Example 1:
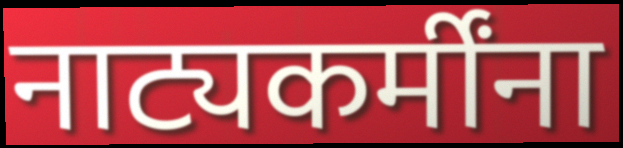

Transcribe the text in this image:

नाट्यकर्मींना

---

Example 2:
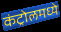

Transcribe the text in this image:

कंट्रोलमध्ये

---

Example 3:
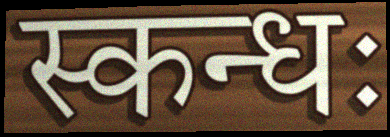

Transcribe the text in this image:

स्कन्धः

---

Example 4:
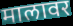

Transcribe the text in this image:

मालावर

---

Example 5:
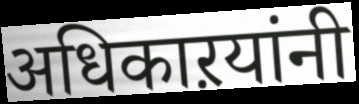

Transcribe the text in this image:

अधिकाऱयांनी